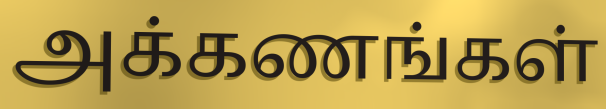
அக்கணங்கள்